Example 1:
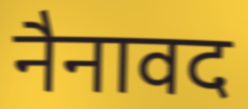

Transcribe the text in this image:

नैनावद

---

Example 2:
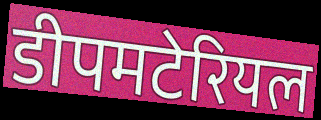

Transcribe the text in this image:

डीपमटेरियल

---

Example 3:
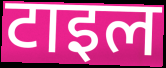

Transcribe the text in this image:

टाइल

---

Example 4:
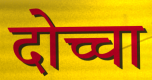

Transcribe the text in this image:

दोच्चा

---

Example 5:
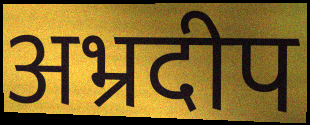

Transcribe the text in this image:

अभ्रदीप